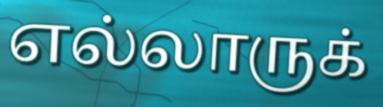
எல்லாருக்